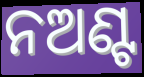
ନଅଣ୍ଟ